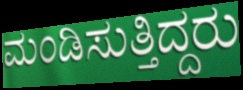
ಮಂಡಿಸುತ್ತಿದ್ದರು